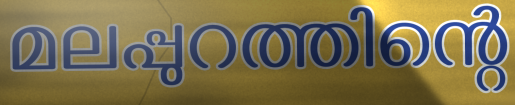
മലപ്പുറത്തിന്റെ